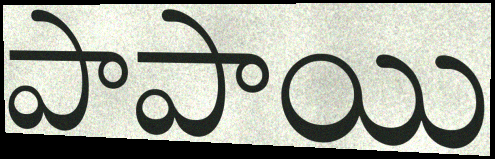
పాపాయి